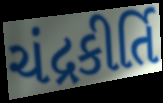
ચંદ્રકીર્તિ